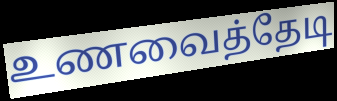
உணவைத்தேடி